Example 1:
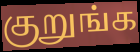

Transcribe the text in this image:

குறுங்க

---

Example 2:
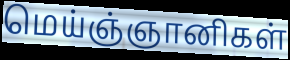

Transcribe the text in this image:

மெய்ஞ்ஞானிகள்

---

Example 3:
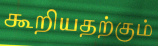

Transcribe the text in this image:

கூறியதற்கும்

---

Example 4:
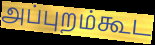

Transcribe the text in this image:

அப்புறம்கூட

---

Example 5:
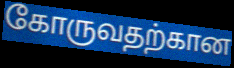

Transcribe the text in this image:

கோருவதற்கான